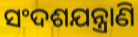
ସଂଦଶଯନ୍ତ୍ରାଣି